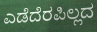
ಎಡೆದೆರಪಿಲ್ಲದ